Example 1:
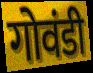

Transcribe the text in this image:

गोवंडी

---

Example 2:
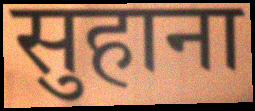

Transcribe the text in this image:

सुहाना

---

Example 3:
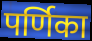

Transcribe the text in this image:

पर्णिका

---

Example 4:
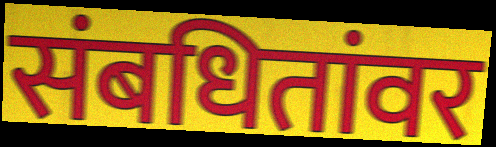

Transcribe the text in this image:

संबधितांवर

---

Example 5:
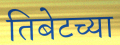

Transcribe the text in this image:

तिबेटच्या